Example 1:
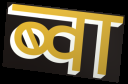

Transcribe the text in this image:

ब्वा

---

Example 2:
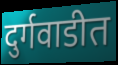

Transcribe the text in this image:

दुर्गवाडीत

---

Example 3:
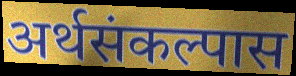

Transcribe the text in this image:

अर्थसंकल्पास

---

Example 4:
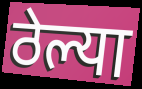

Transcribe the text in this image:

ठेल्या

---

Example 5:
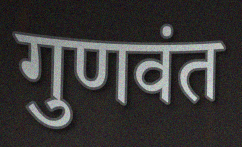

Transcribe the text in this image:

गुणवंत